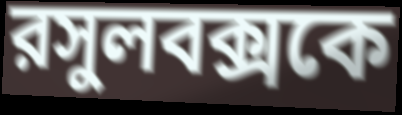
রসুলবক্সকে